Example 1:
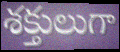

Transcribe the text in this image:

శక్తులుగా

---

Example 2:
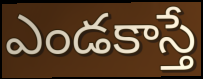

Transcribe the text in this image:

ఎండకాస్తే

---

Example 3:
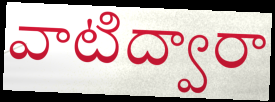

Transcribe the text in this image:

వాటిద్వారా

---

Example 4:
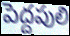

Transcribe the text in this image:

పెద్దపులి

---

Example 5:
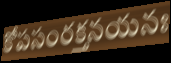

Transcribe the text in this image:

కోపసంరక్తనయనః